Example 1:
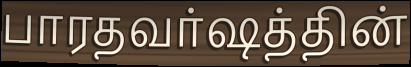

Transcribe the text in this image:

பாரதவர்ஷத்தின்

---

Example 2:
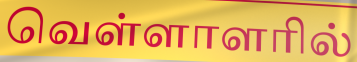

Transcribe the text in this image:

வெள்ளாளரில்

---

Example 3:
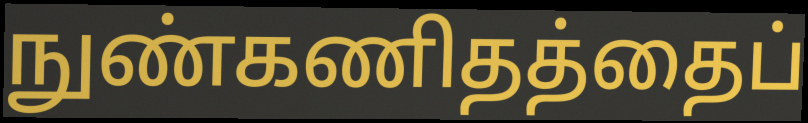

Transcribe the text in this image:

நுண்கணிதத்தைப்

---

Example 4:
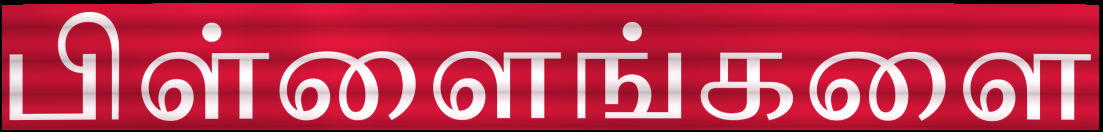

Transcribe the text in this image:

பிள்ளைங்களை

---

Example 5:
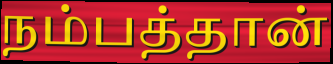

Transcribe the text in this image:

நம்பத்தான்